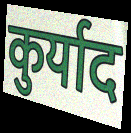
कुर्याद